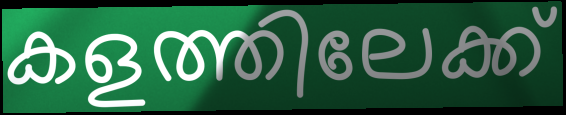
കളത്തിലേക്ക്